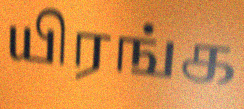
யிரங்க